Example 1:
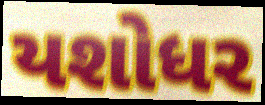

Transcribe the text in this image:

યશોધર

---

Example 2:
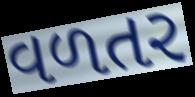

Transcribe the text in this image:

વળતર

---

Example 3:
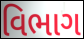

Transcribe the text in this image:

વિભાગ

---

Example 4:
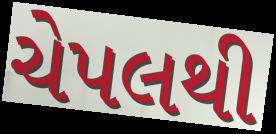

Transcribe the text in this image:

ચેપલથી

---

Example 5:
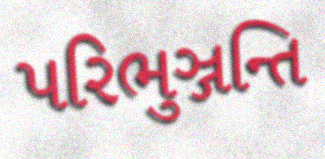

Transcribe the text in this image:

પરિભુઞ્જન્તિ